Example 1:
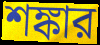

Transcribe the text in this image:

শঙ্কার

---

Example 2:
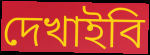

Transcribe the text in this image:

দেখাইবি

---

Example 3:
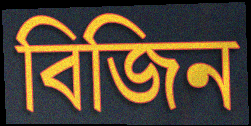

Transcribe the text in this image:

বিজিন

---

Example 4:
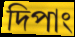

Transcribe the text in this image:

দিপাং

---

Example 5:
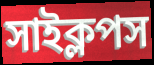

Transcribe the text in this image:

সাইক্লপস